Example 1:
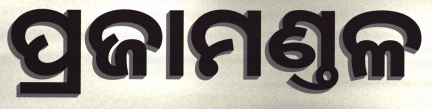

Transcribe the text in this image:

ପ୍ରଜାମଣ୍ତଳ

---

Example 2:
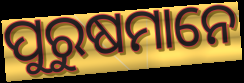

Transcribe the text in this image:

ପୁରୁଷମାନେ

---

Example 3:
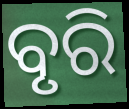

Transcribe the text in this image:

ବୃରି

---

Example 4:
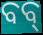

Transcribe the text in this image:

ବବ୍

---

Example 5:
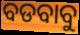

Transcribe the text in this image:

ବଡବାବୁ